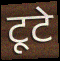
टूटे